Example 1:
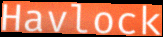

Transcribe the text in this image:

Havlock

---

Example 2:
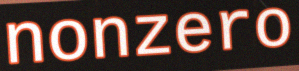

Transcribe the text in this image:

nonzero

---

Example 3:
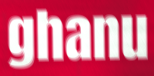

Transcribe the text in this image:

ghanu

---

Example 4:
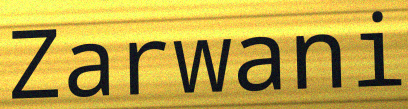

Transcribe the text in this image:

Zarwani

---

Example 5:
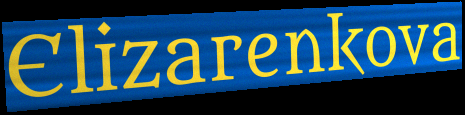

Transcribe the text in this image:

Elizarenkova